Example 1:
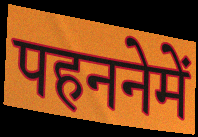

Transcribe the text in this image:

पहननेमें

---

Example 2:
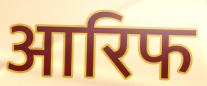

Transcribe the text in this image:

आरिफ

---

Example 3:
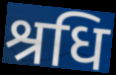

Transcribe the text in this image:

श्रधि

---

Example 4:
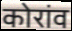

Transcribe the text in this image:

कोरांव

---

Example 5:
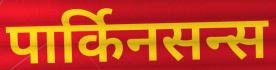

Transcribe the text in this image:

पार्किनसन्स